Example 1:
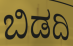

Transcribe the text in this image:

ಬಿಡದಿ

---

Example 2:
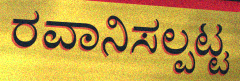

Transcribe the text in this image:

ರವಾನಿಸಲ್ಪಟ್ಟ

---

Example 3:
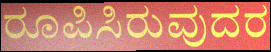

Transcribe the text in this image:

ರೂಪಿಸಿರುವುದರ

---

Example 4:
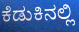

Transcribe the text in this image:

ಕೆಡುಕಿನಲ್ಲಿ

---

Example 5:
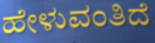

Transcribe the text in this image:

ಹೇಳುವಂತಿದೆ